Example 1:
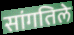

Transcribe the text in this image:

सांगतिले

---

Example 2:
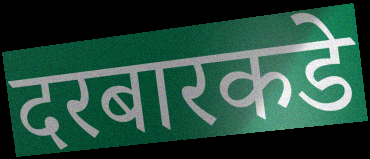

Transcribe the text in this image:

दरबारकडे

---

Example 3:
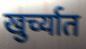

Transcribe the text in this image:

खुर्च्यात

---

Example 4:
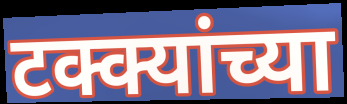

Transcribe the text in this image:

टक्क्यांच्या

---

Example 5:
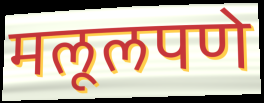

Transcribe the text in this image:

मलूलपणे